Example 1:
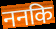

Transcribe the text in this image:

ननकि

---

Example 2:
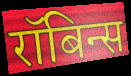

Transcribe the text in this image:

रॉबिन्स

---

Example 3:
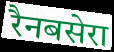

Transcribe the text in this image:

रैनबसेरा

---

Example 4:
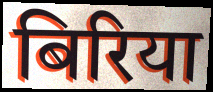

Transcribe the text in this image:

बिरिया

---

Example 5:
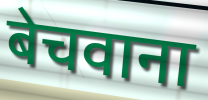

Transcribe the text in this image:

बेचवाना